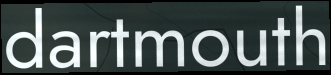
dartmouth